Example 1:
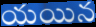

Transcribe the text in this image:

యయిన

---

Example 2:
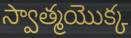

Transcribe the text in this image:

స్వాత్మయొక్క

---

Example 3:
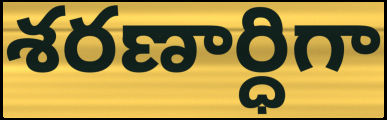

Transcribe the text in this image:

శరణార్ధిగా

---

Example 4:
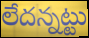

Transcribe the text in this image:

లేదన్నట్టు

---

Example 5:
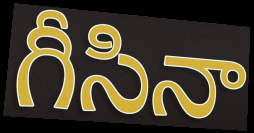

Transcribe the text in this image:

గీసినా